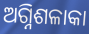
ଅଗ୍ନିଶଳାକା